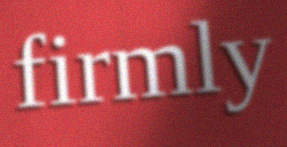
firmly